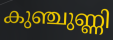
കുഞ്ചുണ്ണി